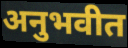
अनुभवीत